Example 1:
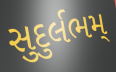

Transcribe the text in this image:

સુદુર્લભમ્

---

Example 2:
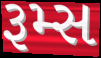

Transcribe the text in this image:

રૂમ્સ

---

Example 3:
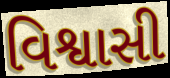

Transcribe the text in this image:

વિશ્વાસી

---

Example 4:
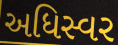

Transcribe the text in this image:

અધિસ્વર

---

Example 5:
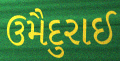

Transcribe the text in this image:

ઉમૈદુરાઈ